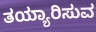
ತಯ್ಯಾರಿಸುವ